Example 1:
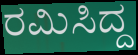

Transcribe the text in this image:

ರಮಿಸಿದ್ದ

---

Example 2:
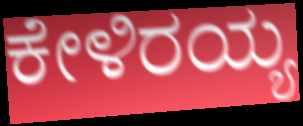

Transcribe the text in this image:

ಕೇಳಿರಯ್ಯ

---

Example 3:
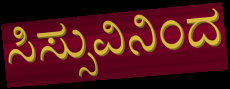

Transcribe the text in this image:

ಸಿಸ್ಸುವಿನಿಂದ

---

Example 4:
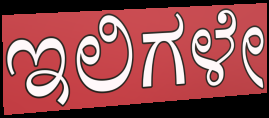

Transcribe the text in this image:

ಇಲಿಗಳೇ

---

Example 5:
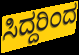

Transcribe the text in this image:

ಸಿದ್ದರಿಂದ